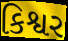
કિશ્વર